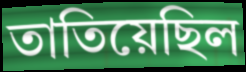
তাতিয়েছিল